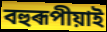
বহুৰূপীয়াই